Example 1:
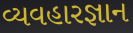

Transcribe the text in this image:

વ્યવહારજ્ઞાન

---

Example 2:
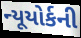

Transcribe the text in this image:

ન્યૂયોર્કની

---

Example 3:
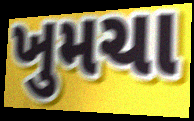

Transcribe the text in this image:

ખુમચા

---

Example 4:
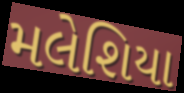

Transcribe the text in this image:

મલેશિયા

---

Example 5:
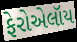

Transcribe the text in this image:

ફેરોએલૉય